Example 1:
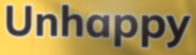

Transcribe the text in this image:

Unhappy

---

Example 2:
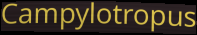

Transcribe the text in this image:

Campylotropus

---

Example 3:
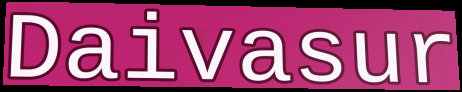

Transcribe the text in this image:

Daivasur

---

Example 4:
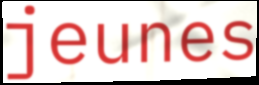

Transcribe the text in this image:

jeunes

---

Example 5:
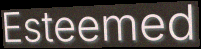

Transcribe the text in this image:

Esteemed